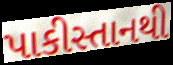
પાકીસ્તાનથી